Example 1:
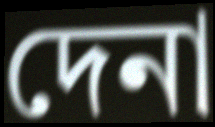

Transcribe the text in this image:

দেনা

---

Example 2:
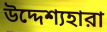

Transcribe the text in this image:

উদ্দেশ্যহারা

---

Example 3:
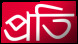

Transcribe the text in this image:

প্রতি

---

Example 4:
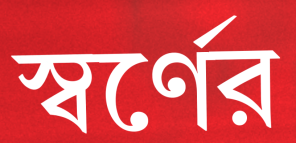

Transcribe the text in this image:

স্বর্ণের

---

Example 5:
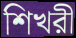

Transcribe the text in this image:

শিখরী